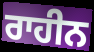
ਰਾਹੀਨ